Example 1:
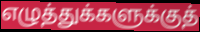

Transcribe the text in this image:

எழுத்துக்களுக்குத்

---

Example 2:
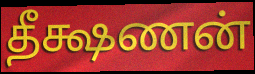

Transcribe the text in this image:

தீக்ஷணன்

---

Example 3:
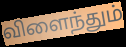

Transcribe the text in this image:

விளைந்தும்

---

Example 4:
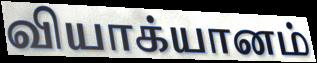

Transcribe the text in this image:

வியாக்யானம்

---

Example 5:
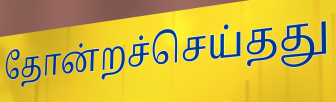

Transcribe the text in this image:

தோன்றச்செய்தது